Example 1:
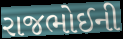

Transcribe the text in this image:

રાજભોઈની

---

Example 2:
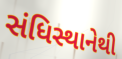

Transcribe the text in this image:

સંધિસ્થાનેથી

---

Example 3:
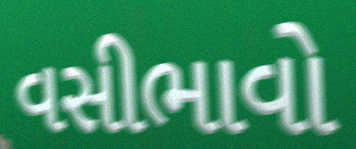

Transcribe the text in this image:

વસીભાવો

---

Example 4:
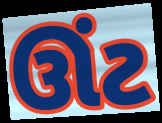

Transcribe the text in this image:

ઊંટ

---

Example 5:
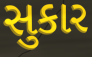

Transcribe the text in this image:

સુકાર